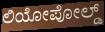
ಲಿಯೋಪೋಲ್ಡ್